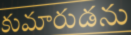
కుమారుడను